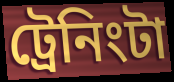
ট্রেনিংটা